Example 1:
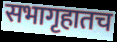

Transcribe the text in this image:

सभागृहातच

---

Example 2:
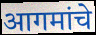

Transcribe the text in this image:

आगमांचे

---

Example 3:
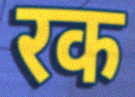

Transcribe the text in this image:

रक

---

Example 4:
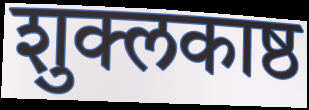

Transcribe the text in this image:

शुक्लकाष्ठ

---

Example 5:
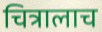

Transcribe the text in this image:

चित्रालाच